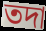
তদা